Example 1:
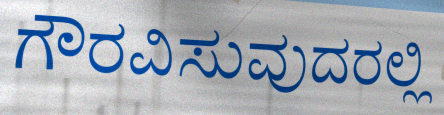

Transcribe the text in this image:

ಗೌರವಿಸುವುದರಲ್ಲಿ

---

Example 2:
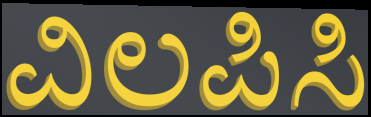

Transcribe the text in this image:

ವಿಲಪಿಸಿ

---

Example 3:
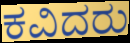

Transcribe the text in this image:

ಕವಿದರು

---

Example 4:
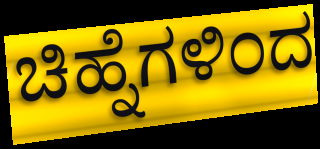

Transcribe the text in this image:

ಚಿಹ್ನೆಗಳಿಂದ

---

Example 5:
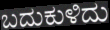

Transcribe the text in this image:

ಬದುಕುಳಿದು